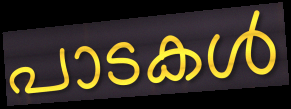
പാടകൾ